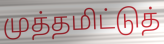
முத்தமிட்டுத்